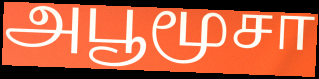
அபூமூசா